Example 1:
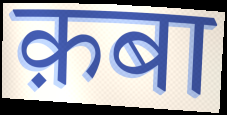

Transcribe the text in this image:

क़बा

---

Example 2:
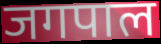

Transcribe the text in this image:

जगपाल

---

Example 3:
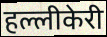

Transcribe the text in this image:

हल्लीकेरी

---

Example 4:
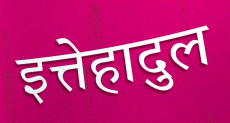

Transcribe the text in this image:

इत्तेहादुल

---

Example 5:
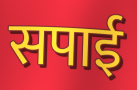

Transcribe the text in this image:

सपाई